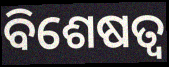
ବିଶେଷତ୍ଵ